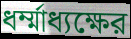
ধর্ম্মাধ্যক্ষের